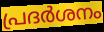
പ്രദർശനം